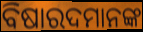
ବିଷାରଦମାନଙ୍କ